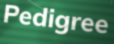
Pedigree